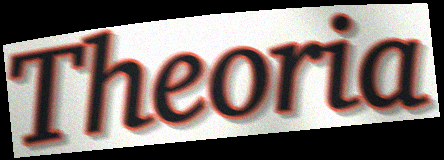
Theoria